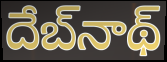
దేబ్‌నాథ్